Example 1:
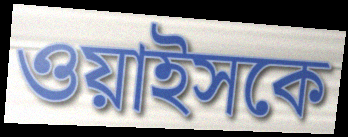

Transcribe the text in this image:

ওয়াইসকে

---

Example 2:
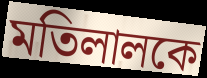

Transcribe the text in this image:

মতিলালকে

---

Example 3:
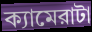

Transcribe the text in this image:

ক্যামেরাটা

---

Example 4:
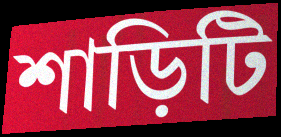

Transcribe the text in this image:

শাড়িটি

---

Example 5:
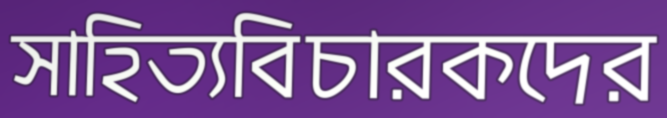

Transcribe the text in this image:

সাহিত্যবিচারকদের